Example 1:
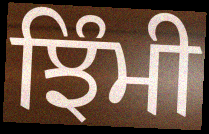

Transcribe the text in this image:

ਝਿੰਮੀ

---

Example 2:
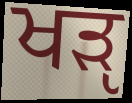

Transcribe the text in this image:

ਖੜੵ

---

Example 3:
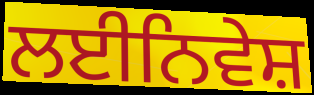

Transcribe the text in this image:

ਲਈਨਿਵੇਸ਼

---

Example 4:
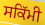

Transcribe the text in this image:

ਸਕਿੱਮੀ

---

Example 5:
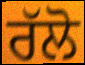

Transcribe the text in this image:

ਰੱਲੋ